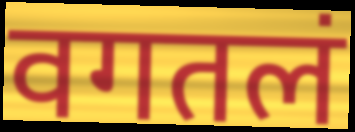
वगतलं